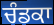
ਚੰਡਕਾ